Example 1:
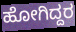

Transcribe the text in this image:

ಹೋಗಿದ್ದರ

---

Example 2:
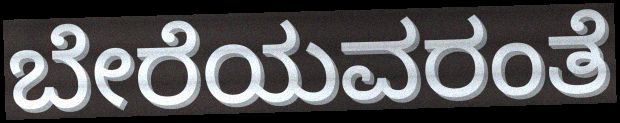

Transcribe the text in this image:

ಬೇರೆಯವರಂತೆ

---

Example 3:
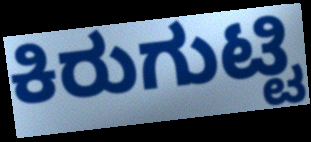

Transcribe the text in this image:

ಕಿರುಗುಟ್ಟಿ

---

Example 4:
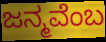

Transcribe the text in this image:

ಜನ್ಮವೆಂಬ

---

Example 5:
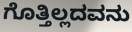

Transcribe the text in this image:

ಗೊತ್ತಿಲ್ಲದವನು